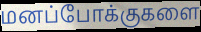
மனப்போக்குகளை